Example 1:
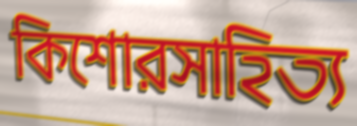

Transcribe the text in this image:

কিশোরসাহিত্য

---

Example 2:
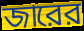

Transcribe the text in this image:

জারের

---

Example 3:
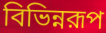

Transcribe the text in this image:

বিভিন্নরূপ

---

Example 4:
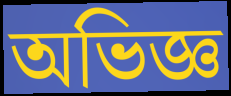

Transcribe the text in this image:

অভিজ্ঞ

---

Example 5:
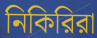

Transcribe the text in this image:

নিকিরিরা